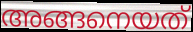
അങ്ങനെയത്